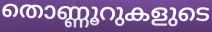
തൊണ്ണൂറുകളുടെ